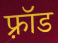
फ़्रॉड